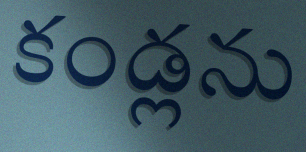
కండ్లను